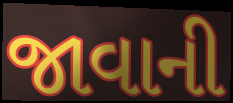
જાવાની